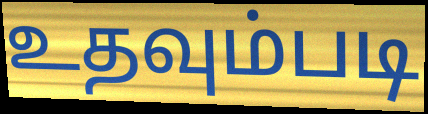
உதவும்படி